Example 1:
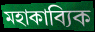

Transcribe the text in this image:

মহাকাব্যিক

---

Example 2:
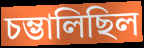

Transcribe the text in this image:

চম্ভালিছিল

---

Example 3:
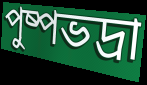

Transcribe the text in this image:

পুষ্পভদ্ৰা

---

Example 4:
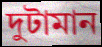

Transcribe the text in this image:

দুটামান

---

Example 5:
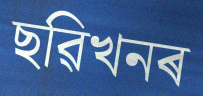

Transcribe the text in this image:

ছৱিখনৰ